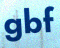
gbf